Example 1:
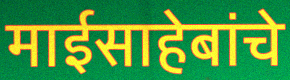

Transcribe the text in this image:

माईसाहेबांचे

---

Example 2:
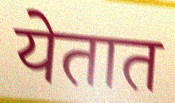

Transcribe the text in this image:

येतात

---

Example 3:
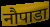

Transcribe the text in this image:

नौपाडा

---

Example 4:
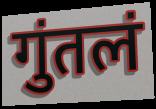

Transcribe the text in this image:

गुंतलं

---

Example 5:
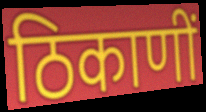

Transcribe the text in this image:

ठिकाणीं